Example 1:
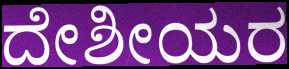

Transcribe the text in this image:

ದೇಶೀಯರ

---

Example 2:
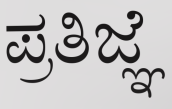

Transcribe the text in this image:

ಪ್ರತಿಜ್ಞೆ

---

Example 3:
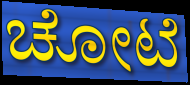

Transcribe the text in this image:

ಚೋಟೆ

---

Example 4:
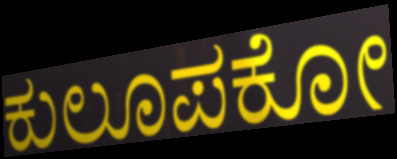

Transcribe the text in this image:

ಕುಲೂಪಕೋ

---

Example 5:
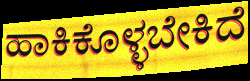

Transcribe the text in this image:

ಹಾಕಿಕೊಳ್ಳಬೇಕಿದೆ